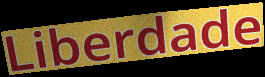
Liberdade